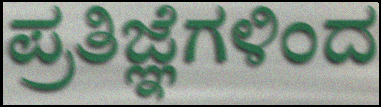
ಪ್ರತಿಜ್ಞೆಗಳಿಂದ